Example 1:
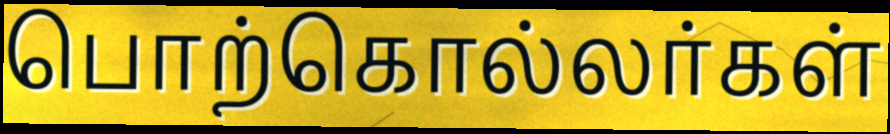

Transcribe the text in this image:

பொற்கொல்லர்கள்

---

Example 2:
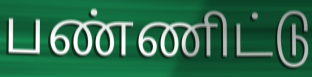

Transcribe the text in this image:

பண்ணிட்டு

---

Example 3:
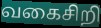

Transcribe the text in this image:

வகைசிறி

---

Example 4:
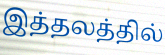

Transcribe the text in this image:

இத்தலத்தில்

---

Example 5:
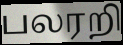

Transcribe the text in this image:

பலரறி